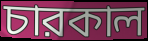
চারকাল